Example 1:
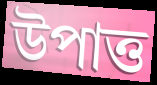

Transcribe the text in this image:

উপাত্ত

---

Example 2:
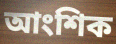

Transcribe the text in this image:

আংশিক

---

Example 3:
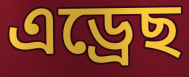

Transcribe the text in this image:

এড্ৰেছ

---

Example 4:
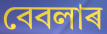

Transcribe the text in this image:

বেবলাৰ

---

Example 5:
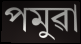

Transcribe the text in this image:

পমুৱা